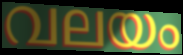
വലയം